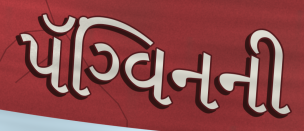
પૅંગ્વિનની